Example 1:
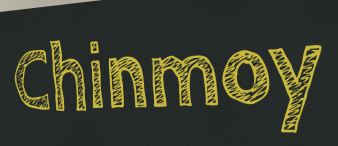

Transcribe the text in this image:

Chinmoy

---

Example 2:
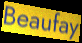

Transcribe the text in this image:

Beaufay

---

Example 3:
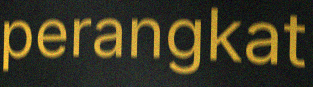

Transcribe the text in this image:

perangkat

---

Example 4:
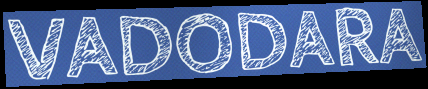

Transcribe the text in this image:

VADODARA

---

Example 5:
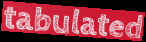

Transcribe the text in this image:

tabulated